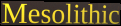
Mesolithic